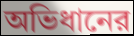
অভিধানের